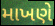
માખણે